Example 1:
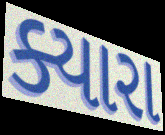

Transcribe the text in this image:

ક્યારા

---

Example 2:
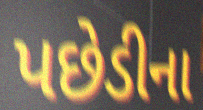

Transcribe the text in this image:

પછેડીના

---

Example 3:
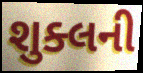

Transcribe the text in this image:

શુક્લની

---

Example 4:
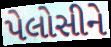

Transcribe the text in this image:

પેલોસીને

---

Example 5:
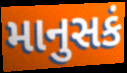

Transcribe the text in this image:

માનુસકં